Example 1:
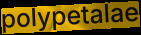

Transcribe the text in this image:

polypetalae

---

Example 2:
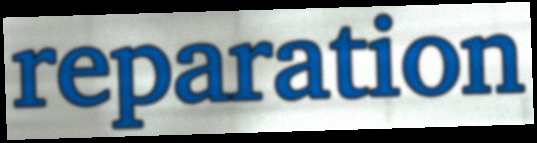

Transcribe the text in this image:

reparation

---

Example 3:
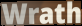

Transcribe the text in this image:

Wrath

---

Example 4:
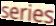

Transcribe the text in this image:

series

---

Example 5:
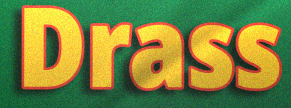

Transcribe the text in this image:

Drass